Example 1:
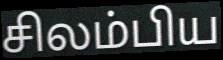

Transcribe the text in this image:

சிலம்பிய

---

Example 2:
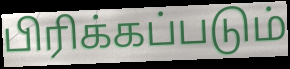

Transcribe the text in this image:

பிரிக்கப்படும்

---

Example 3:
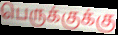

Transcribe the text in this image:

பெருக்குக்கு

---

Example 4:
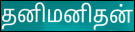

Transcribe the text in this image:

தனிமனிதன்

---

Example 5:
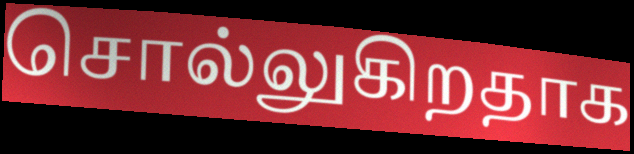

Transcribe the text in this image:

சொல்லுகிறதாக